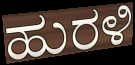
ಹುರಳಿ